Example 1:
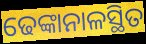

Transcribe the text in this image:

ଢେଙ୍କାନାଳସ୍ଥିତ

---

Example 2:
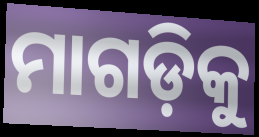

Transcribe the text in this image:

ମାଗଡ଼ିକୁ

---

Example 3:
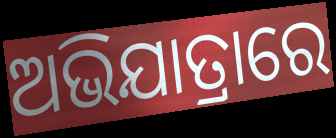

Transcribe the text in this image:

ଅଭିଯାତ୍ରାରେ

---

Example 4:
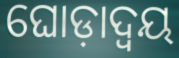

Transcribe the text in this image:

ଘୋଡ଼ାଦ୍ୱୟ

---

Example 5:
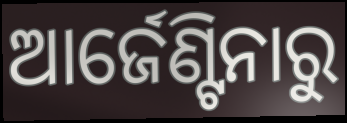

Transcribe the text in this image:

ଆର୍ଜେଣ୍ଟିନାରୁ